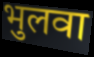
भुलवा